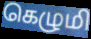
கெழுமி